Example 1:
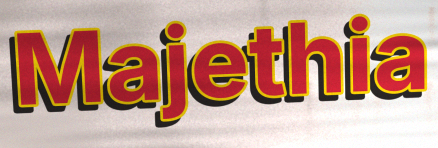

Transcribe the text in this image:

Majethia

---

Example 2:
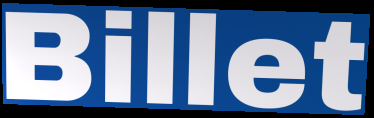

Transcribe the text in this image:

Billet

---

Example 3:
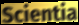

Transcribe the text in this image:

Scientia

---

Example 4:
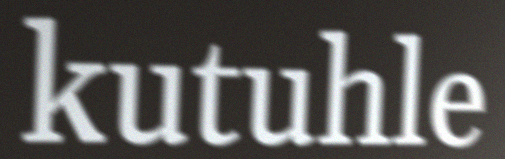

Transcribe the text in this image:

kutuhle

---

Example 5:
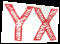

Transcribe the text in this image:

YX